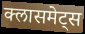
क्लासमेट्स